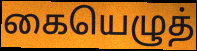
கையெழுத்